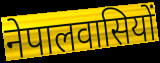
नेपालवासियों